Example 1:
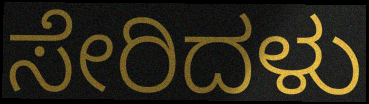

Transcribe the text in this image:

ಸೇರಿದಳು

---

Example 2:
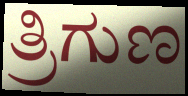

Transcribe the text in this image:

ತ್ರಿಗುಣ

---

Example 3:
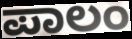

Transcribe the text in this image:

ಪಾಲಂ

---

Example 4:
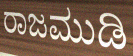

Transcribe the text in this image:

ರಾಜಮುಡಿ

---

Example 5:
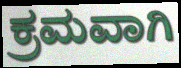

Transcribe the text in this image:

ಕ್ರಮವಾಗಿ